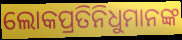
ଲୋକପ୍ରତିନିଧୁମାନଙ୍କ